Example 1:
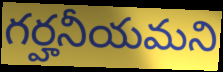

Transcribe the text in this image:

గర్హనీయమని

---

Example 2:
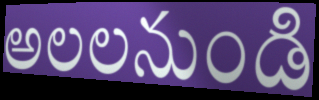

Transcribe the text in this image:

అలలనుండి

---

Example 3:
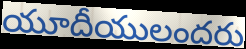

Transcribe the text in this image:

యూదీయులందరు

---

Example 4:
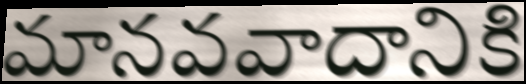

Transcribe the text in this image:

మానవవాదానికి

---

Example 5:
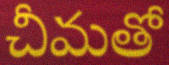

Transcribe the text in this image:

చీమతో